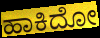
ಹಾಕಿದೋ